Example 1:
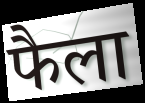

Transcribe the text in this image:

फैला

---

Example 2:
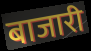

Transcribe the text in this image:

बाजारी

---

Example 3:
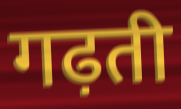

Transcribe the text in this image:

गढ़ती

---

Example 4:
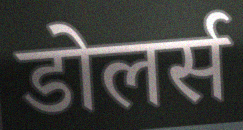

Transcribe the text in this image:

डोलर्स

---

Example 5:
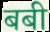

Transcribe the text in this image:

बबी